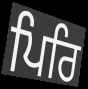
ਪਿਰਿ